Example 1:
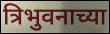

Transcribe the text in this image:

त्रिभुवनाच्या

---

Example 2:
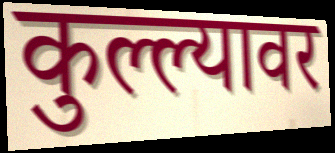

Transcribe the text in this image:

कुल्ल्यावर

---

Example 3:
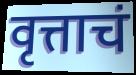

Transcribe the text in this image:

वृत्ताचं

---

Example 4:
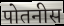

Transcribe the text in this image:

पोतनीस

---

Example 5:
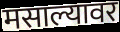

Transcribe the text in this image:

मसाल्यावर